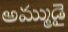
అమ్ముడై